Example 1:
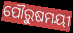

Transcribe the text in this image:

ପୌରୁଷମୟୀ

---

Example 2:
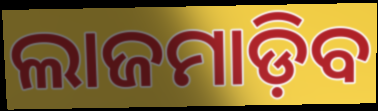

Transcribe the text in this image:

ଲାଜମାଡ଼ିବ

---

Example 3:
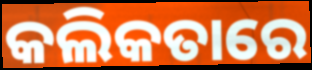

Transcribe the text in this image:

କଲିକତାରେ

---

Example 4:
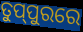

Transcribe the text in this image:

ତୁପ୍‌ପୁରରେ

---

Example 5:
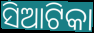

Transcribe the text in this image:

ସିଆଟିକା